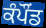
ਕੰਪੌਂਡ